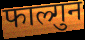
फाल्गुन